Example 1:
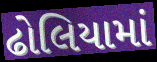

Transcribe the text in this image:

ઢોલિયામાં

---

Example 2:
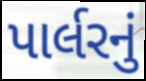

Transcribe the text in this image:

પાર્લરનું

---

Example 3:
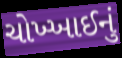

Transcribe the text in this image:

ચોખ્ખાઈનું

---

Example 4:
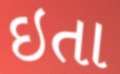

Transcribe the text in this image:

ઇતા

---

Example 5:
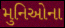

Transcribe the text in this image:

મુનિઓના